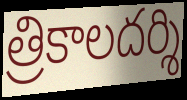
త్రికాలదర్శి